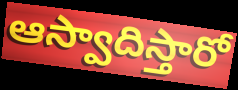
ఆస్వాదిస్తారో